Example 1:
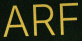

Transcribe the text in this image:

ARF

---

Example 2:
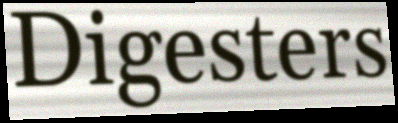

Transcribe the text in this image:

Digesters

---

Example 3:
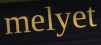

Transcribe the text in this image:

melyet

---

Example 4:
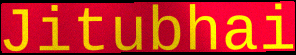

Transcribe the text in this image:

Jitubhai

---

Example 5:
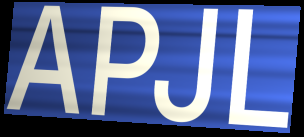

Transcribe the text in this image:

APJL